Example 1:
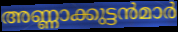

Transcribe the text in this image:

അണ്ണാക്കുട്ടൻമാർ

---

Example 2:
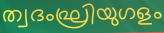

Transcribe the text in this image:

ത്വദംഘ്രിയുഗളം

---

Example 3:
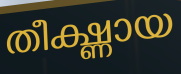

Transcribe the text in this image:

തീക്ഷ്ണായ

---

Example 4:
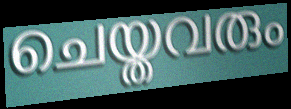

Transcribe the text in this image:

ചെയ്തവരും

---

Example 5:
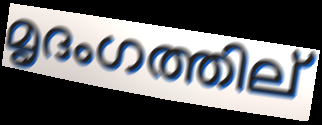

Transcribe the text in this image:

മൃദംഗത്തില്